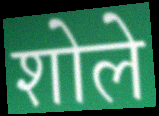
शोले